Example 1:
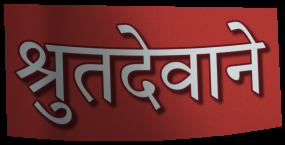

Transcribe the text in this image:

श्रुतदेवाने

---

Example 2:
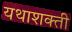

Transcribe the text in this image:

यथाशक्‍ती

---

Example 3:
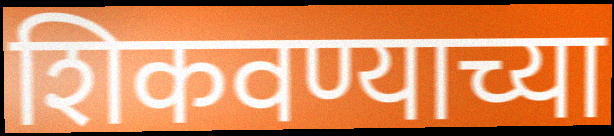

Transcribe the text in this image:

शिकवण्याच्या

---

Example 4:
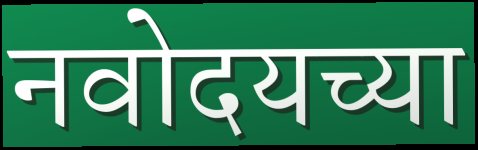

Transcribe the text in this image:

नवोदयच्या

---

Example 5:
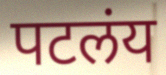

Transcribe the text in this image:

पटलंय